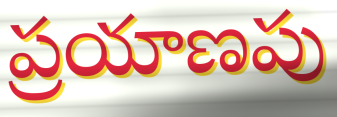
ప్రయాణపు